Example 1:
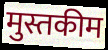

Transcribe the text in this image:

मुस्तकीम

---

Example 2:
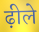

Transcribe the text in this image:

ढ़ीले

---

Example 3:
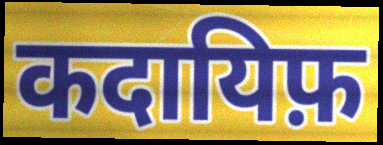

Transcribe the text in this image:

कदायिफ़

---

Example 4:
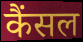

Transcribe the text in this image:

कैंसल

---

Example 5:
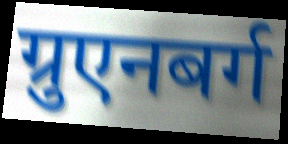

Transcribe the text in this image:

ग्रुएनबर्ग